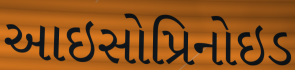
આઇસોપ્રિનોઇડ